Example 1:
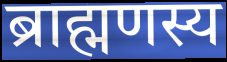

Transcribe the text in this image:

ब्राह्मणस्य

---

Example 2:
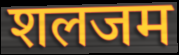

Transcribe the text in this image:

शलजम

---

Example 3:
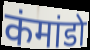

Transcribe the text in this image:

कंमांडो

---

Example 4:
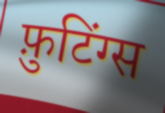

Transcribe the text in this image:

फ़ुटिंग्स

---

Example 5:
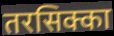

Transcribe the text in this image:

तरसिक्का